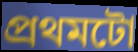
প্ৰথমটো